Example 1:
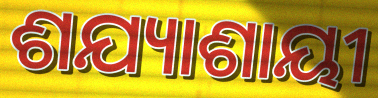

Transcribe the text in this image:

ଶଯ୍ୟାଶାୟୀ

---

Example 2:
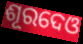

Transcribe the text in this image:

ଶୂରଦେଓ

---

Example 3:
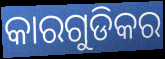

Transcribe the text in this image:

କାରଗୁଡିକର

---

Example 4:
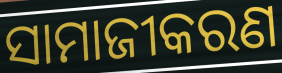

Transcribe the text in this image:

ସାମାଜୀକରଣ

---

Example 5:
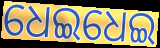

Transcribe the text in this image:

ଧେଇଧେଇ